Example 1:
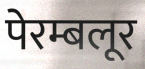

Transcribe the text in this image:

पेरम्बलूर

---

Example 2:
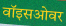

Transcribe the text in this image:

वॉइसओवर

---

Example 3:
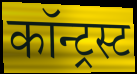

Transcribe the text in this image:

कॉन्ट्रस्ट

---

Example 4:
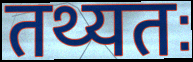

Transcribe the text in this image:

तथ्यतः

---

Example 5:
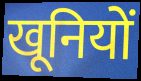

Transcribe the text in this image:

खूनियों